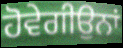
ਹੋਵੇਗੀਉਨਾਂ